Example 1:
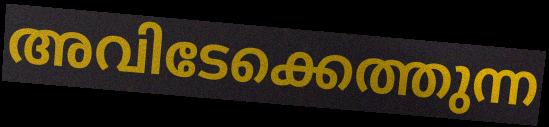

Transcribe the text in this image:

അവിടേക്കെത്തുന്ന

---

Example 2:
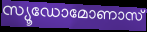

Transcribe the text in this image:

സ്യൂഡോമോണാസ്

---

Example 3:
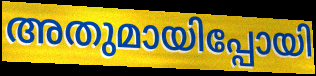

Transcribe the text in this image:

അതുമായിപ്പോയി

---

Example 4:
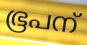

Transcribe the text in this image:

ഭൂപന്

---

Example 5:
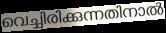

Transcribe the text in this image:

വെച്ചിരിക്കുന്നതിനാൽ